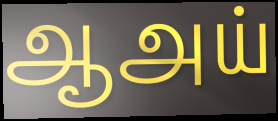
ஆஅய்